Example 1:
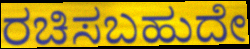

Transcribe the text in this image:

ರಚಿಸಬಹುದೇ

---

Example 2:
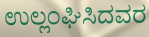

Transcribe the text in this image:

ಉಲ್ಲಂಘಿಸಿದವರ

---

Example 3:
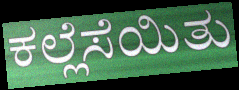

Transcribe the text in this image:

ಕಲ್ಲೆಸೆಯಿತು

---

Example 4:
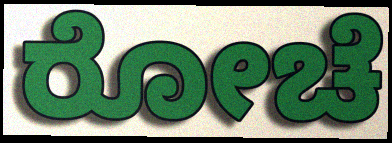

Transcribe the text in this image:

ರೋಚೆ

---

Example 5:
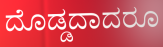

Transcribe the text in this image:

ದೊಡ್ಡದಾದರೂ